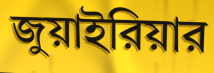
জুয়াইরিয়ার